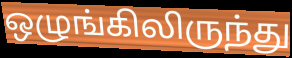
ஒழுங்கிலிருந்து